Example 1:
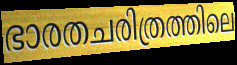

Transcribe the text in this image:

ഭാരതചരിത്രത്തിലെ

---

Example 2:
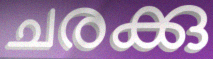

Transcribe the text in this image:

ചരക്കു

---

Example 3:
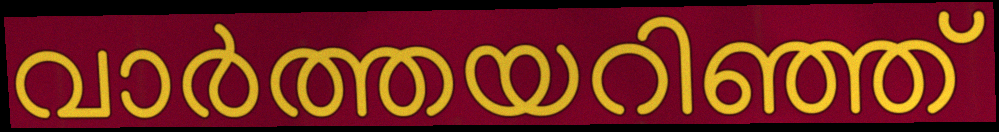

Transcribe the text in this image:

വാർത്തയറിഞ്ഞ്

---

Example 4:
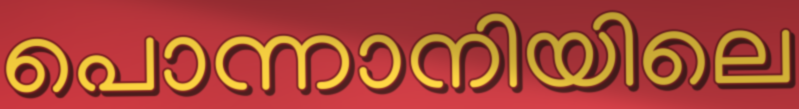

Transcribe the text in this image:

പൊന്നാനിയിലെ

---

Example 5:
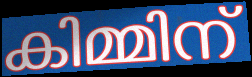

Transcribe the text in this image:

കിമ്മിന്